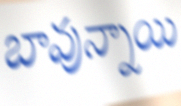
బావున్నాయి